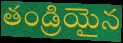
తండ్రియైన